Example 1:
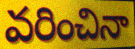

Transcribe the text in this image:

వరించినా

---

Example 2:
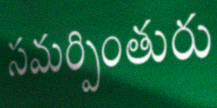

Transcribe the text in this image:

సమర్పింతురు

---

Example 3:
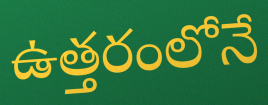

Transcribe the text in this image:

ఉత్తరంలోనే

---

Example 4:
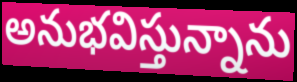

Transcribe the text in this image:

అనుభవిస్తున్నాను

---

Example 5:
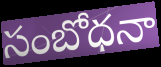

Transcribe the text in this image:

సంబోధనా